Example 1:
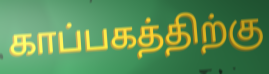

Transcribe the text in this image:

காப்பகத்திற்கு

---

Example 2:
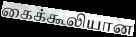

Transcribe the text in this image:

கைக்கூலியான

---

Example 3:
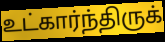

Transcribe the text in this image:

உட்கார்ந்திருக்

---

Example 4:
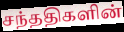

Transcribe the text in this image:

சந்ததிகளின்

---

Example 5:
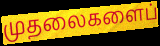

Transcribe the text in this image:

முதலைகளைப்